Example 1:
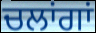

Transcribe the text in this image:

ਚਲਾਂਗਾਂ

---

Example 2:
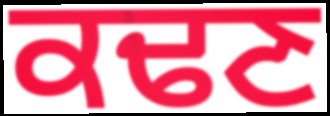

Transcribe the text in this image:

ਕਢਣ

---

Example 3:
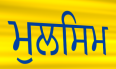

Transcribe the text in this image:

ਮੁਲਸਿਮ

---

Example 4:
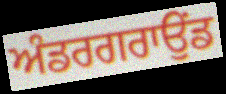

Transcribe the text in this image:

ਅੰਡਰਗਰਾਉਂਡ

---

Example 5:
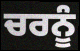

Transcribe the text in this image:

ਚਰਨੂੰ